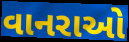
વાનરાઓ